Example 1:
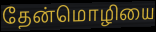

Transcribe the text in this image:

தேன்மொழியை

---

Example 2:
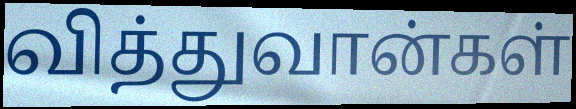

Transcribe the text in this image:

வித்துவான்கள்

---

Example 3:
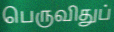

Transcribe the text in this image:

பெருவிதுப்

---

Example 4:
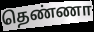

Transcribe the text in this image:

தெண்ணா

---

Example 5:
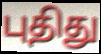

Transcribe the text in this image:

புதிது